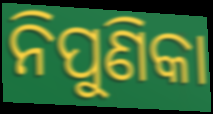
ନିପୁଣିକା